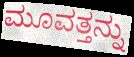
ಮೂವತ್ತನ್ನು